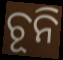
ଚୂନି